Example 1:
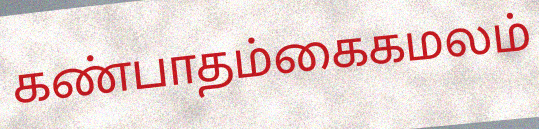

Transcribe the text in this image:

கண்பாதம்கைகமலம்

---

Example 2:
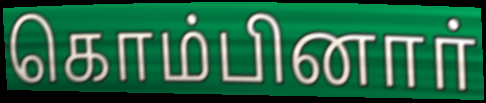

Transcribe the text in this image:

கொம்பினார்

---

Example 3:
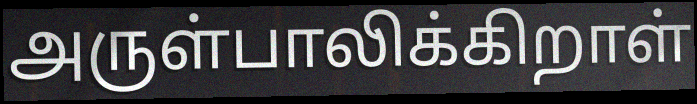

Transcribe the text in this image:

அருள்பாலிக்கிறாள்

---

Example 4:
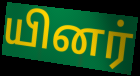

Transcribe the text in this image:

யினர்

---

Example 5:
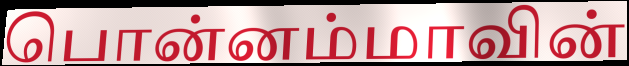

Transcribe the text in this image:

பொன்னம்மாவின்